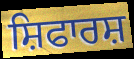
ਸ਼ਿਫਾਰਸ਼